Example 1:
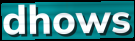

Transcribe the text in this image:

dhows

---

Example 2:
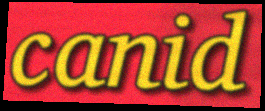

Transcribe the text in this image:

canid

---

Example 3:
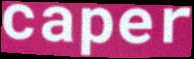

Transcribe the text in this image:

caper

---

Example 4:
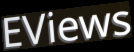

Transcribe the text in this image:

EViews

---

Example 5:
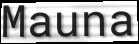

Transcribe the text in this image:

Mauna